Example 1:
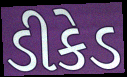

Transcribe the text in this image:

ડીકેડ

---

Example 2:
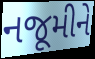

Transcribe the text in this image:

નજૂમીને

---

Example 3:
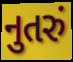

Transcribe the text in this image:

નુતરું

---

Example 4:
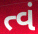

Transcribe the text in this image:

ત્વં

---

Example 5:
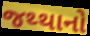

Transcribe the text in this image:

જથ્થાનો